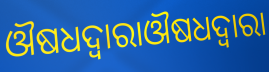
ଔଷଧଦ୍ଵାରାଔଷଧଦ୍ବାରା